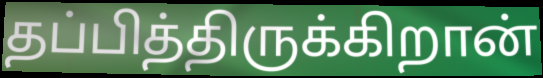
தப்பித்திருக்கிறான்